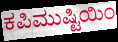
ಕಪಿಮುಷ್ಟಿಯಿಂ